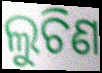
ଲୁଚିଣ